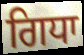
ਗਿਧਾ